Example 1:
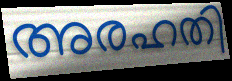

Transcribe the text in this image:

അരഹതി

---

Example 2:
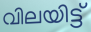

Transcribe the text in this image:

വിലയിട്ട്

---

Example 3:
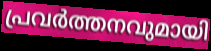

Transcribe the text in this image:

പ്രവർത്തനവുമായി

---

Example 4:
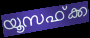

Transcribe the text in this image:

യൂസഫ്ക്ക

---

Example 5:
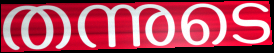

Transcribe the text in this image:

തന്നുടെ